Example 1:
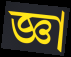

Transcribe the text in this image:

জ্ঞা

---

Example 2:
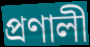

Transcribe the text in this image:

প্ৰণালী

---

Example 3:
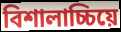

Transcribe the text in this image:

বিশালাচ্চিয়ে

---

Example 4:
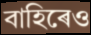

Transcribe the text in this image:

বাহিৰেও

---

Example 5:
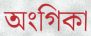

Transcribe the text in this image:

অংগিকা